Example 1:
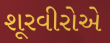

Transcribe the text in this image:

શૂરવીરોએ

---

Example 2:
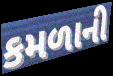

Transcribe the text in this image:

કમળાની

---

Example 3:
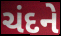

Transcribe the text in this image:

ચંદને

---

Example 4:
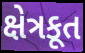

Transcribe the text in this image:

ક્ષેત્રકૂત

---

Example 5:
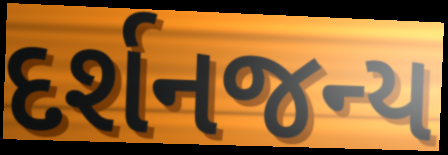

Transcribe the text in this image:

દર્શનજન્ય